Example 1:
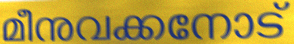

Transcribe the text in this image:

മീനുവക്കനോട്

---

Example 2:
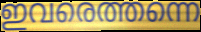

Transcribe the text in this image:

ഇവരെത്തന്നെ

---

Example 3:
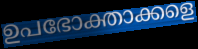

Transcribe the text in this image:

ഉപഭോക്താക്കളെ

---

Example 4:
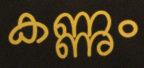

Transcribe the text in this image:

കണ്ണും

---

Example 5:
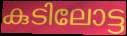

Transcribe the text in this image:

കുടിലോട്ട